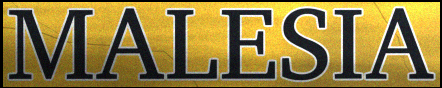
MALESIA